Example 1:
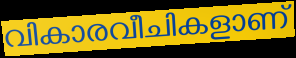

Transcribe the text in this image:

വികാരവീചികളാണ്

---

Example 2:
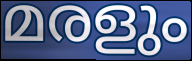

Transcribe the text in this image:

മരളും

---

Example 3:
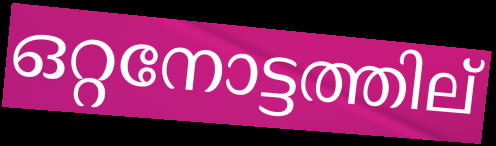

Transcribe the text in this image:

ഒറ്റനോട്ടത്തില്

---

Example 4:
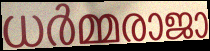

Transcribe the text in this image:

ധർമ്മരാജാ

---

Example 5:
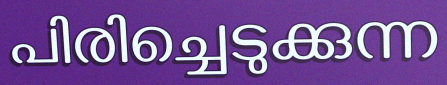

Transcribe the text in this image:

പിരിച്ചെടുക്കുന്ന